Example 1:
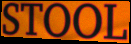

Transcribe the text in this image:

STOOL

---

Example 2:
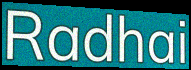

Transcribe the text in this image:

Radhai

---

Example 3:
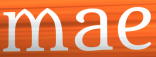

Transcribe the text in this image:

mae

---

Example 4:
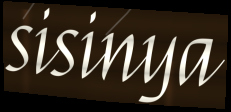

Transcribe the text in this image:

sisinya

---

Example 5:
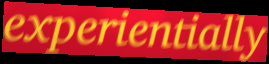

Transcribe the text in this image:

experientially